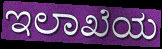
ಇಲಾಖೆಯ